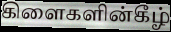
கிளைகளின்கீழ்